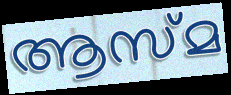
ആസ്മ